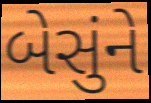
બેસુંને